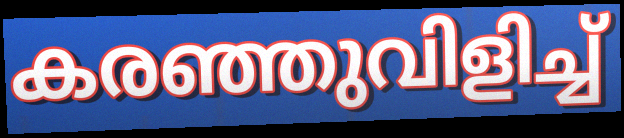
കരഞ്ഞുവിളിച്ച്